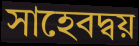
সাহেবদ্বয়